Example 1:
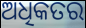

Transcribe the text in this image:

ଅଧିକତର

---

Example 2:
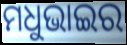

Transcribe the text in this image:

ମଧୁଭାଇର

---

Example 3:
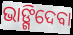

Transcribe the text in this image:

ଭାଙ୍ଗିଦେବା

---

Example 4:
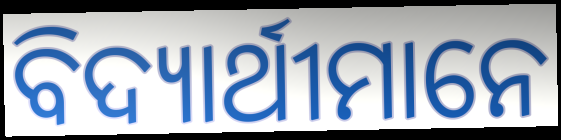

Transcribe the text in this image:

ବିଦ୍ୟାର୍ଥୀମାନେ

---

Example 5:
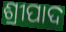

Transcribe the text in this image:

ଶ୍ରୀପାଦ